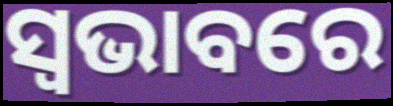
ସ୍ବଭାବରେ